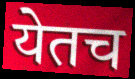
येतच